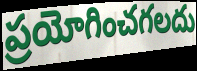
ప్రయోగించగలదు